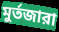
মুর্তজারা